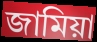
জামিয়া